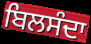
ਬਿਲਸੰਦਾ